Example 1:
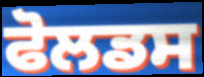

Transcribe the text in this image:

ਫੋਲਡਸ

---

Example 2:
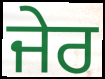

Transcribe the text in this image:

ਜੇਰ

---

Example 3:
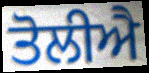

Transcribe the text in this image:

ਤੋਲੀਐ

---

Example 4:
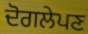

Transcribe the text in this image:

ਦੋਗਲੇਪਣ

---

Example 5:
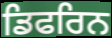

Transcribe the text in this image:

ਡਿਫਰਿਨ